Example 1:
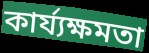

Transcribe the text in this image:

কাৰ্য্যক্ষমতা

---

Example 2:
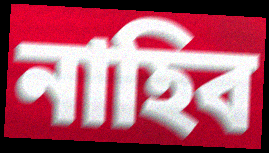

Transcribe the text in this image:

নাহিব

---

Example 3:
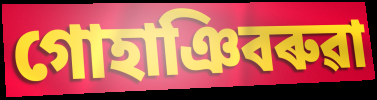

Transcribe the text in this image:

গোহাঞিবৰুৱা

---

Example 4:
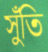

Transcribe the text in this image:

সুঁতি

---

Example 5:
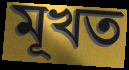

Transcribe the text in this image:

মূখত